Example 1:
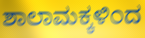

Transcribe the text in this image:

ಶಾಲಾಮಕ್ಕಳಿಂದ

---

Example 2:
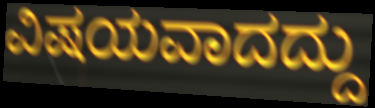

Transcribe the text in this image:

ವಿಷಯವಾದದ್ದು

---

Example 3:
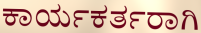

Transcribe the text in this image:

ಕಾರ್ಯಕರ್ತರಾಗಿ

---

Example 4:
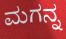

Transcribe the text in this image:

ಮಗನ್ನ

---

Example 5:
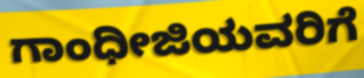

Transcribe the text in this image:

ಗಾಂಧೀಜಿಯವರಿಗೆ